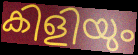
കിളിയും